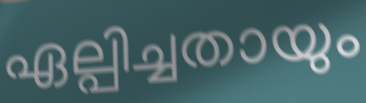
ഏല്പിച്ചതായും